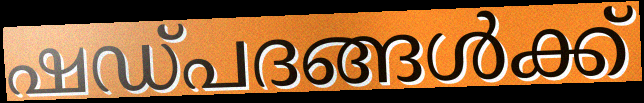
ഷഡ്പദങ്ങൾക്ക്